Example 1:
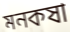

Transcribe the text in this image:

মনকষা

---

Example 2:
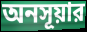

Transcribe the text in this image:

অনসূয়ার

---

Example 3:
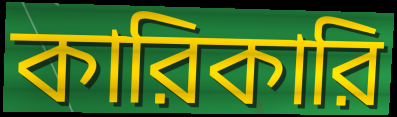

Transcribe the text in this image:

কারিকারি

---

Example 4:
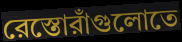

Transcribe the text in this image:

রেস্তোরাঁগুলোতে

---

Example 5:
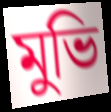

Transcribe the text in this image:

মুভি